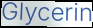
Glycerin